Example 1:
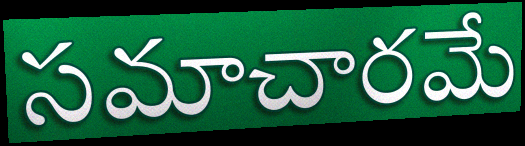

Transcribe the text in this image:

సమాచారమే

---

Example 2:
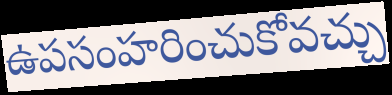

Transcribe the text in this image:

ఉపసంహరించుకోవచ్చు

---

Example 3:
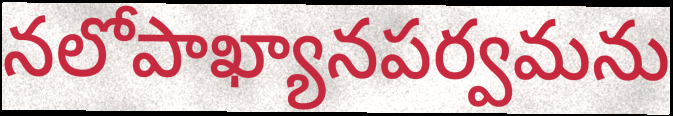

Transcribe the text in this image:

నలోపాఖ్యానపర్వమను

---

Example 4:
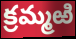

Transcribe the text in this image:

క్రమ్మఱి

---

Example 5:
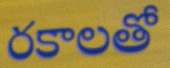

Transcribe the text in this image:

రకాలతో